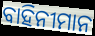
ବାହିନୀମାନ